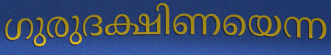
ഗുരുദക്ഷിണയെന്ന